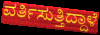
ವರ್ತಿಸುತ್ತಿದ್ದಾಳೆ